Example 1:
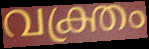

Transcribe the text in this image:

വക്ത്രം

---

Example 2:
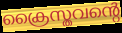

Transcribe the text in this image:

ക്രൈസ്തവന്റെ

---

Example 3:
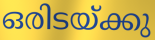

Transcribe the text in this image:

ഒരിടയ്ക്കു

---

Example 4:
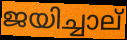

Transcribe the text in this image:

ജയിച്ചാല്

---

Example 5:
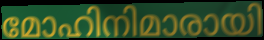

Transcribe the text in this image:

മോഹിനിമാരായി